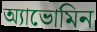
অ্যাভোমিন